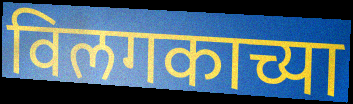
विलगकाच्या